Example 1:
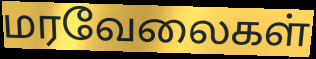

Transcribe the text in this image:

மரவேலைகள்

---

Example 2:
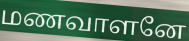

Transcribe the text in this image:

மணவாளனே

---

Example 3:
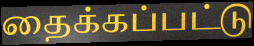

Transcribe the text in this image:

தைக்கப்பட்டு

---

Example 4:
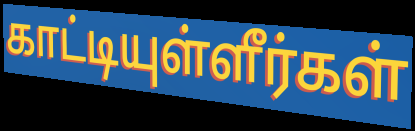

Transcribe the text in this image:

காட்டியுள்ளீர்கள்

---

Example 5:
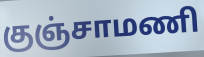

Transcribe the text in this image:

குஞ்சாமணி